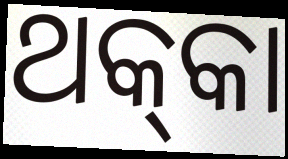
ଥକ୍‍କା